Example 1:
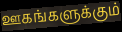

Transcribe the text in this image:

ஊகங்களுக்கும்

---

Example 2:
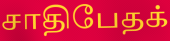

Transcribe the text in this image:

சாதிபேதக்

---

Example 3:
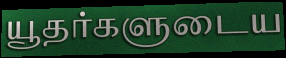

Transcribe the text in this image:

யூதர்களுடைய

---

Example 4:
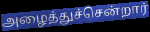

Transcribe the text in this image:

அழைத்துச்சென்றார்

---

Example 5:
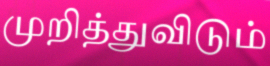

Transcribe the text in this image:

முறித்துவிடும்